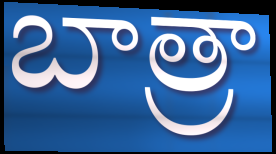
బాత్రా